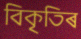
বিকৃতিৰ